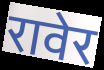
रावेर